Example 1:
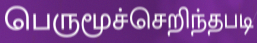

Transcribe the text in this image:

பெருமூச்செறிந்தபடி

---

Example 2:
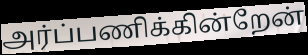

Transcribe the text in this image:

அர்ப்பணிக்கின்றேன்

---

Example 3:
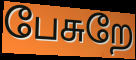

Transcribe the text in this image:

பேசுறே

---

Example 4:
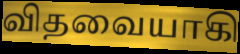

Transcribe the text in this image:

விதவையாகி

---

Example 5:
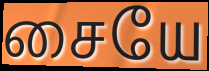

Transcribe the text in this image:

சையே